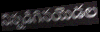
నిన్నడిగినయెడల